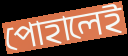
পোহালেই